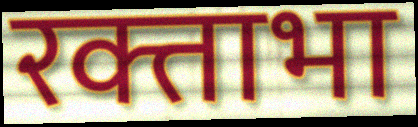
रक्ताभा